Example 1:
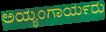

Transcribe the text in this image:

ಅಯ್ಯಂಗಾರ್ಯರು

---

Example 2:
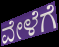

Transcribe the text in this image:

ವೇಳೆಗೆ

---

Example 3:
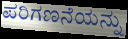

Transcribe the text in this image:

ಪರಿಗಣನೆಯನ್ನು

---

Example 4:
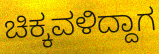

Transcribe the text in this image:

ಚಿಕ್ಕವಳಿದ್ದಾಗ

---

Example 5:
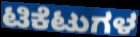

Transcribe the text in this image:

ಟಿಕೆಟುಗಳ